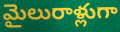
మైలురాళ్లుగా